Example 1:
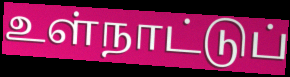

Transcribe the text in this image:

உள்நாட்டுப்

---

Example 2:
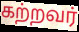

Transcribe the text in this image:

கற்றவர்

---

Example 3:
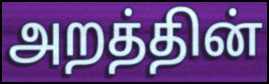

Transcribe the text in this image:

அறத்தின்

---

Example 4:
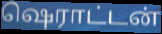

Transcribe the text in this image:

ஷெராட்டன்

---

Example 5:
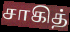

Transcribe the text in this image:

சாகித்